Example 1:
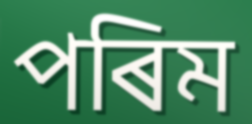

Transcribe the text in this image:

পৰিম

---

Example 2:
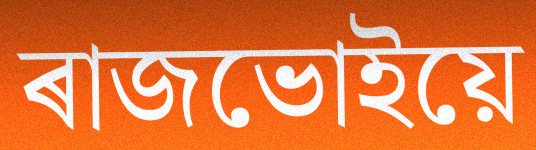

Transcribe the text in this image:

ৰাজভোইয়ে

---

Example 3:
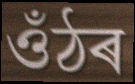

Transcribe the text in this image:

ওঁঠৰ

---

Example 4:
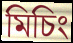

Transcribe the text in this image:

মিচিং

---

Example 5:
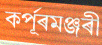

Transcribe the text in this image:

কৰ্পূৰমঞ্জৰী